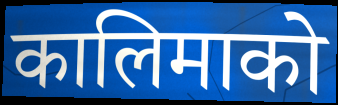
कालिमाको